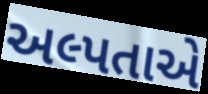
અલ્પતાએ